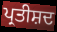
ਪ੍ਰਤੀਸ਼ਦ